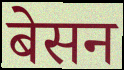
बेसन